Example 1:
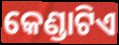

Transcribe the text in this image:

କେଣ୍ଡାଟିଏ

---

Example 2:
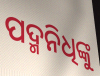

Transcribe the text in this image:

ପଦ୍ମନିଧିଙ୍କୁ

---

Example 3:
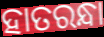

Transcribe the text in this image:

ହାତରନ୍ଧା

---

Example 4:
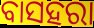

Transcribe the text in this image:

ବାସହରା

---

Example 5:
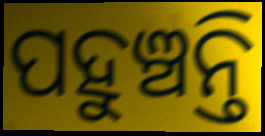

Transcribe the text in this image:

ପହୁଞ୍ଚନ୍ତି